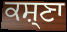
ਕਸ਼੍ਣਾ